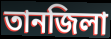
তানজিলা